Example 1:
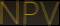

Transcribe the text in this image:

NPV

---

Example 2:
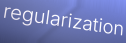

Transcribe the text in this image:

regularization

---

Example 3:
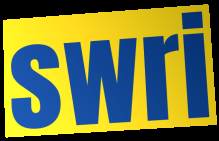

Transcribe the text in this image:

swri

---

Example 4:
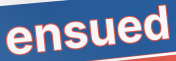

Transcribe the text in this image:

ensued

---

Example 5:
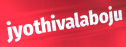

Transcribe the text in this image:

jyothivalaboju